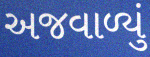
અજવાળ્યું